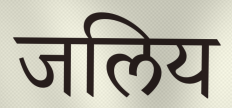
जलिय